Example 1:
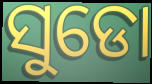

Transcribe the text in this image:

ସୁଡୋ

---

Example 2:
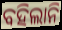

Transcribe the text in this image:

ବହିଲାନି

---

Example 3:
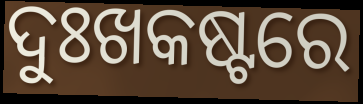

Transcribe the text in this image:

ଦୁଃଖକଷ୍ଟରେ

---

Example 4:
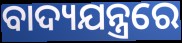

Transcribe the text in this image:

ବାଦ୍ୟଯନ୍ତ୍ରରେ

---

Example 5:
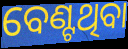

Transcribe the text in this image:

ବେଣ୍ଟଥିବା